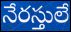
నేరస్తులే